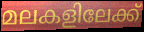
മലകളിലേക്ക്